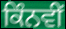
ਕਿੰਨਵੀਂ